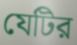
যেটির